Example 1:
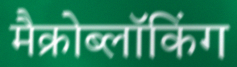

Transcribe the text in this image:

मैक्रोब्लॉकिंग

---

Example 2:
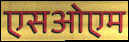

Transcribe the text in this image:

एसओएम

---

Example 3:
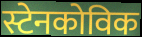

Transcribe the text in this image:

स्टेनकोविक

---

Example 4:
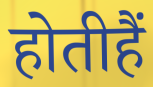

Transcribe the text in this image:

होतीहैं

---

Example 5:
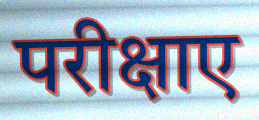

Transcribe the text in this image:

परीक्षाए